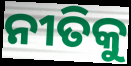
ନୀତିକୁ